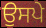
ਉਸਪੇ